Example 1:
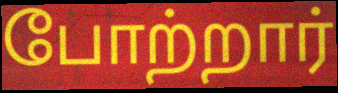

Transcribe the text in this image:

போற்றார்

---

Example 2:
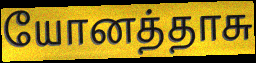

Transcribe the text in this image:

யோனத்தாசு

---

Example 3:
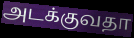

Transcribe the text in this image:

அடக்குவதா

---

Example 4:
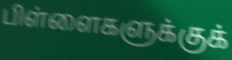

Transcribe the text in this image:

பிள்ளைகளுக்குக்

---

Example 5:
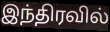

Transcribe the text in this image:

இந்திரவில்